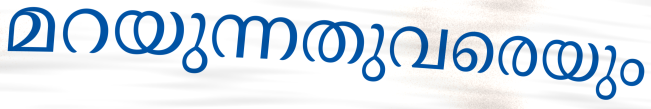
മറയുന്നതുവരെയും